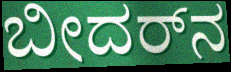
ಬೀದರ್‌ನ